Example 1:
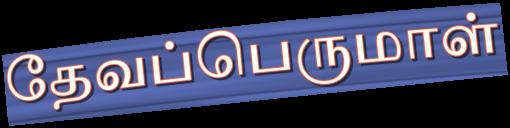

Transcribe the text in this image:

தேவப்பெருமாள்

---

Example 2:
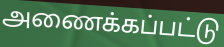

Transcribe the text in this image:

அணைக்கப்பட்டு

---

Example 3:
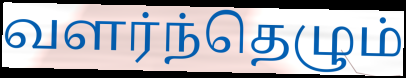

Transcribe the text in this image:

வளர்ந்தெழும்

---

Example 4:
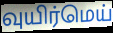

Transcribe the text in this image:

வுயிர்மெய்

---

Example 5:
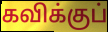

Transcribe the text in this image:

கவிக்குப்